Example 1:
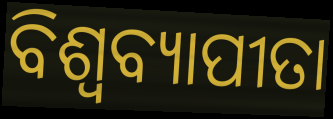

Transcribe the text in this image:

ବିଶ୍ୱବ୍ୟାପୀତା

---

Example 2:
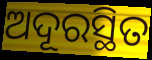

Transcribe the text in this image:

ଅଦୂରସ୍ଥିତ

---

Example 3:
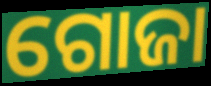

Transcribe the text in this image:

ଗୋଜା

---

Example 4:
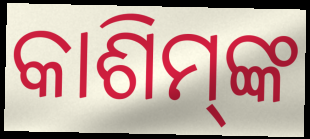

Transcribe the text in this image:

କାଶିମ୍‍ଙ୍କ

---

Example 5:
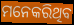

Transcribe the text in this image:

ମନେକରିଥିବ